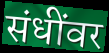
संधींवर